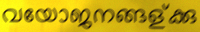
വയോജനങ്ങള്ക്കു